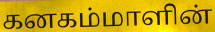
கனகம்மாளின்